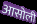
आसोली